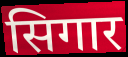
सिगार